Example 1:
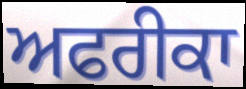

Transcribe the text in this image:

ਅਫਰੀਕਾ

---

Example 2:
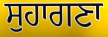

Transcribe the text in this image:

ਸੁਹਾਗਣਾ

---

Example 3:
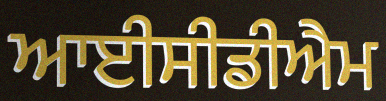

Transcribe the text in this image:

ਆਈਸੀਡੀਐਮ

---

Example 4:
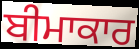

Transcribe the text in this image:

ਬੀਮਾਕਾਰ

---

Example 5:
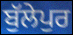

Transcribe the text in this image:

ਬੁੱਲੇਪੁਰ